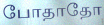
போதாதோ